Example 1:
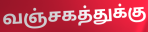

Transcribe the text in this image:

வஞ்சகத்துக்கு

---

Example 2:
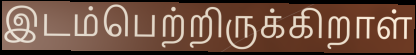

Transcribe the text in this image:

இடம்பெற்றிருக்கிறாள்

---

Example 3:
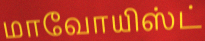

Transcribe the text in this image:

மாவோயிஸ்ட்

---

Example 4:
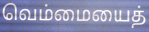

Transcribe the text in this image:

வெம்மையைத்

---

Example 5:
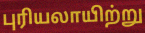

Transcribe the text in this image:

புரியலாயிற்று